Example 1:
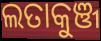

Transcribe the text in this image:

ଲତାକୁଞ୍ଜ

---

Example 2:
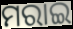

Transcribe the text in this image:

ମରାଇ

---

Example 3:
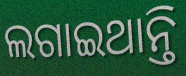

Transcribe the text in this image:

ଲଗାଇଥାନ୍ତି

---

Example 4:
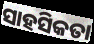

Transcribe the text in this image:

ସାହସିକତା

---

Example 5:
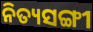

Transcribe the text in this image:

ନିତ୍ୟସଙ୍ଗୀ